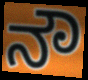
ನೌ